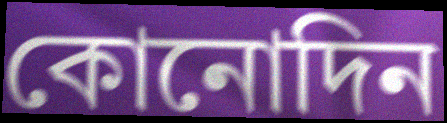
কোনোদিন